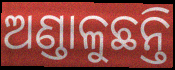
ଅଣ୍ଡାଳୁଛନ୍ତି